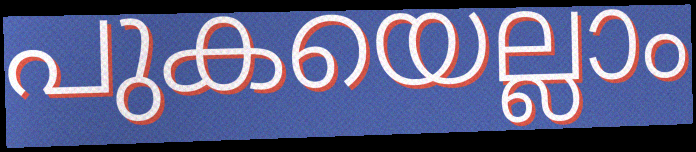
പുകയെല്ലാം